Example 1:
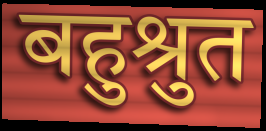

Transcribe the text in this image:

बहुश्रुत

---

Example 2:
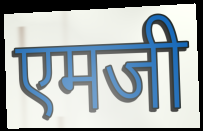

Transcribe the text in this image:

एमजी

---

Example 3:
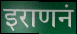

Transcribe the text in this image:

इराणनं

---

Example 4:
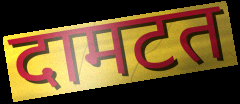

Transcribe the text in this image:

दामटत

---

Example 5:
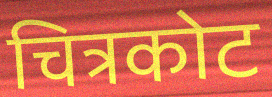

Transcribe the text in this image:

चित्रकोट